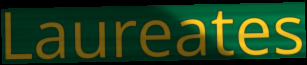
Laureates